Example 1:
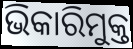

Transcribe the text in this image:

ଭିକାରିମୁକ୍ତ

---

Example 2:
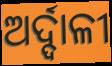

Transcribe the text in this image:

ଅର୍ଦ୍ଦାଳୀ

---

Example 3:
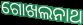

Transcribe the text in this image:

ଗୋଖଲନାଥ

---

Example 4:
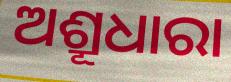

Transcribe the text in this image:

ଅଶ୍ରୂଧାରା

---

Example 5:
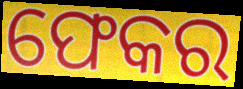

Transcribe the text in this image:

ଫେକର